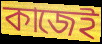
কাজেই